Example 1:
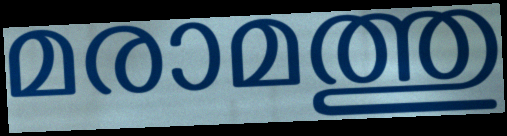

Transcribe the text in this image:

മരാമത്തു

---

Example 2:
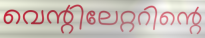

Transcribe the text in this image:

വെന്റിലേറ്ററിന്റെ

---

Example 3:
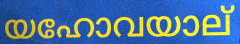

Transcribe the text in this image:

യഹോവയാല്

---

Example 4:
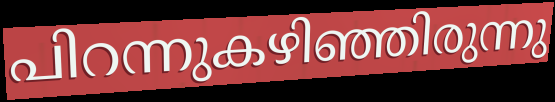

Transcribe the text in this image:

പിറന്നുകഴിഞ്ഞിരുന്നു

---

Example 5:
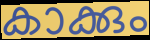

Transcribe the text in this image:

കാക്കും